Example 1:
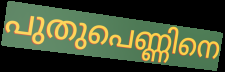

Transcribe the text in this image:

പുതുപെണ്ണിനെ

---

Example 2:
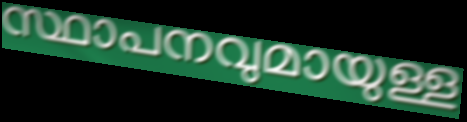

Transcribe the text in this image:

സ്ഥാപനവുമായുള്ള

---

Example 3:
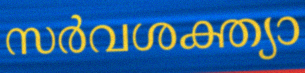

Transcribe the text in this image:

സർവശക്ത്യാ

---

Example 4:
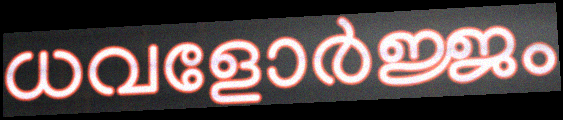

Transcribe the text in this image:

ധവളോർജ്ജം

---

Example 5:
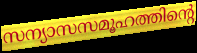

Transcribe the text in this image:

സന്യാസസമൂഹത്തിന്റെ